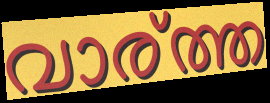
വാര്ത്ത